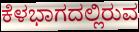
ಕೆಳಭಾಗದಲ್ಲಿರುವ